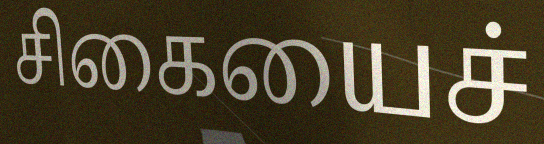
சிகையைச்